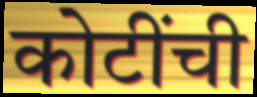
कोटींची